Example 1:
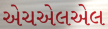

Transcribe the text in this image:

એચએલએલ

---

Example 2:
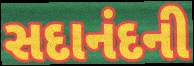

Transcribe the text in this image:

સદાનંદની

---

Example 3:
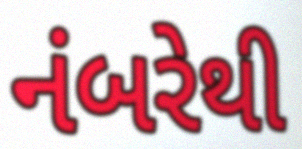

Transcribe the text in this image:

નંબરેથી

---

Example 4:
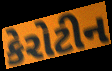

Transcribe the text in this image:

કેરોટીન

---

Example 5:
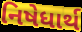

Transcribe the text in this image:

નિષેધાર્થ